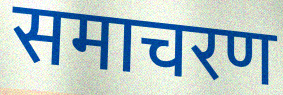
समाचरण